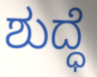
ಶುದ್ಧೆ